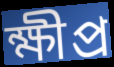
ক্ষীপ্ৰ